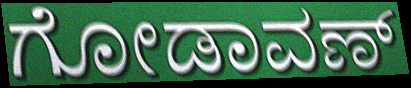
ಗೋಡಾವಣ್